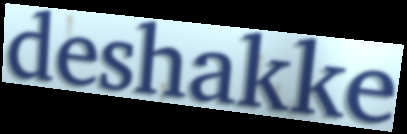
deshakke